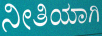
ನೀತಿಯಾಗಿ